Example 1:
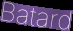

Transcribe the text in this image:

Batard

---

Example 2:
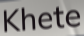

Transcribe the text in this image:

Khete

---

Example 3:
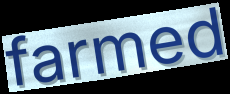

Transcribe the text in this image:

farmed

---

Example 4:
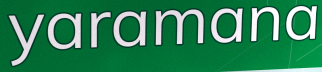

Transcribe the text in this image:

yaramana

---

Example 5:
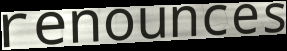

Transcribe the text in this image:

renounces